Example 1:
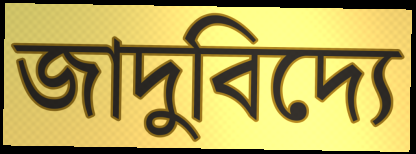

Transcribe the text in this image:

জাদুবিদ্যে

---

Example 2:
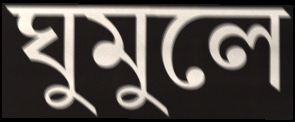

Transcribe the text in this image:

ঘুমুলে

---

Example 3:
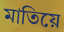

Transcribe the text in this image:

মাতিয়ে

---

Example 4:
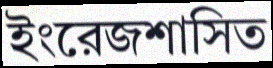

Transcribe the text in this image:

ইংরেজশাসিত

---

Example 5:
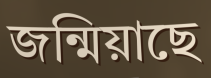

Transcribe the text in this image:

জন্মিয়াছে